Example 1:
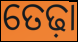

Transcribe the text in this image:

ତେଢ଼ା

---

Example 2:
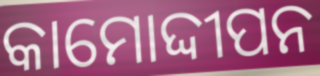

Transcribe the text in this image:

କାମୋଦ୍ଦୀପନ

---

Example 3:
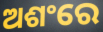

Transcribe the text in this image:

ଅଶଂରେ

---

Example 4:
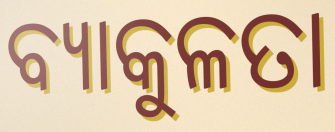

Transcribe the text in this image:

ବ୍ୟାକୁଳତା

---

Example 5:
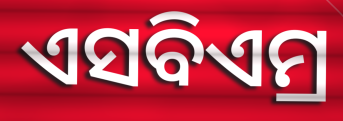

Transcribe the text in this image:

ଏସବିଏମ୍ର